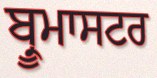
ਬ੍ਰੂਮਾਸਟਰ